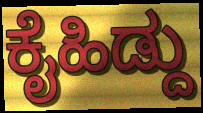
ಕೈಹಿಡ್ದು